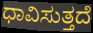
ಧಾವಿಸುತ್ತದೆ